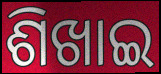
ଶିଖାଇ